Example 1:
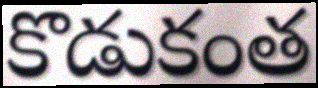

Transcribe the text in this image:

కొడుకంత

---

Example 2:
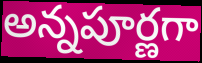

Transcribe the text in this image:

అన్నపూర్ణగా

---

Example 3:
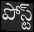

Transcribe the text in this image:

పోస్ట్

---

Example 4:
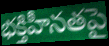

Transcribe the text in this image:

భక్తిహీనతపై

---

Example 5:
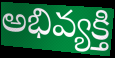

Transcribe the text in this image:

అభివ్యక్తి